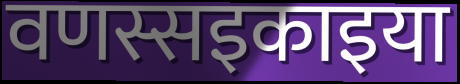
वणस्सइकाइया